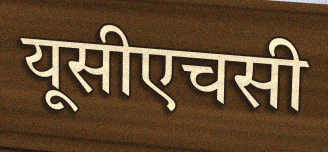
यूसीएचसी